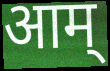
आम्